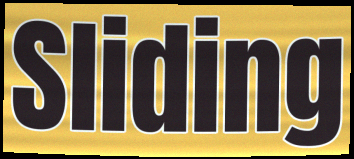
Sliding